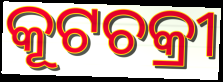
କୂଟଚକ୍ରୀ